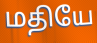
மதியே